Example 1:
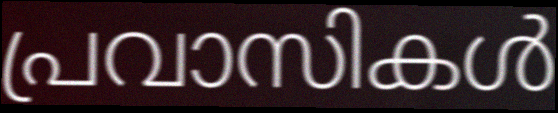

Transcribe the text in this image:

പ്രവാസികൾ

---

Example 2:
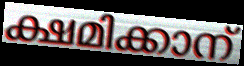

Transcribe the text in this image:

ക്ഷമിക്കാന്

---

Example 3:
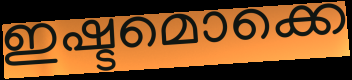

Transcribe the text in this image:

ഇഷ്ടമൊക്കെ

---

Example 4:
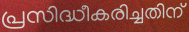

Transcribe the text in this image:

പ്രസിദ്ധീകരിച്ചതിന്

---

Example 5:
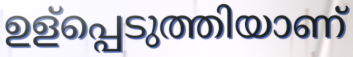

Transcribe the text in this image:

ഉള്പ്പെടുത്തിയാണ്